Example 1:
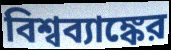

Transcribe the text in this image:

বিশ্বব্যাঙ্কের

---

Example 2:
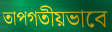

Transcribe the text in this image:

তাপগতীয়ভাবে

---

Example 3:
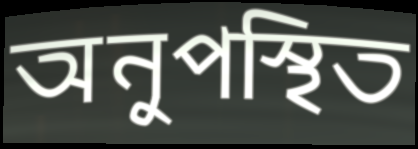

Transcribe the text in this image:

অনুপস্থিত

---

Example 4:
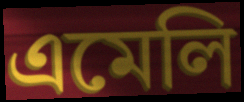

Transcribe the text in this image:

এমেলি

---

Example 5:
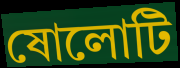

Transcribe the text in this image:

ষোলোটি